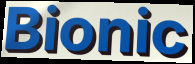
Bionic